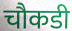
चौकडी